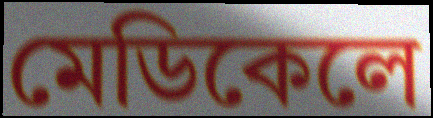
মেডিকেলে